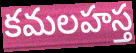
కమలహస్త